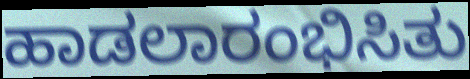
ಹಾಡಲಾರಂಭಿಸಿತು